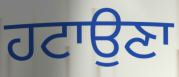
ਹਟਾਉਣਾ